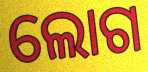
ଲୋଗ